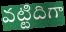
వట్టిదిగా